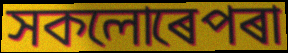
সকলোৰেপৰা